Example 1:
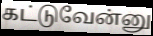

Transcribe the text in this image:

கட்டுவேன்னு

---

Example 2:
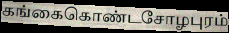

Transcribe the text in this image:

கங்கைகொண்டசோழபுரம்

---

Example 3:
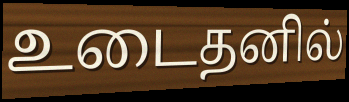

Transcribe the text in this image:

உடைதனில்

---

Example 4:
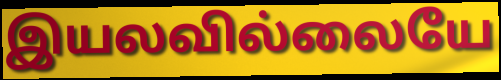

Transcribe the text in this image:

இயலவில்லையே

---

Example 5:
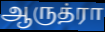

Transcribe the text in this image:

ஆருத்ரா